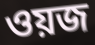
ওয়জ